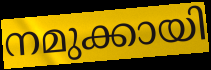
നമുക്കായി